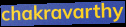
chakravarthy